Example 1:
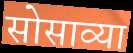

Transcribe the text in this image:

सोसाव्या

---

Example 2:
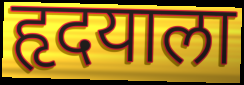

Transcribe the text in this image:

हृदयाला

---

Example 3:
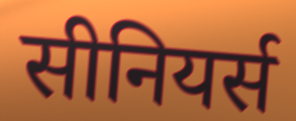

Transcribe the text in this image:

सीनियर्स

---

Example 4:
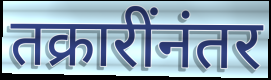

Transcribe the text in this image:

तक्रारींनंतर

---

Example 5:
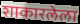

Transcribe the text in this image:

शाकारलेला